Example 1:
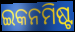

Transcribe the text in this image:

ଇକନମିଷ୍ଟ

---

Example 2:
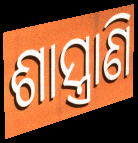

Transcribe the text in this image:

ଶାସ୍ତ୍ରାଣି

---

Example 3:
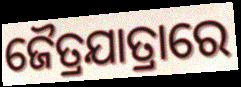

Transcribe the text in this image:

ଜୈତ୍ରଯାତ୍ରାରେ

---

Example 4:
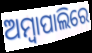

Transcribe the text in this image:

ଅମ୍ବାପାଲିରେ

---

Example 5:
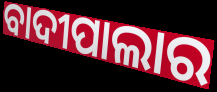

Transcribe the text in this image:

ବାଦୀପାଲାର